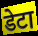
डेटा